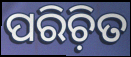
ପରିଚ଼ିତ